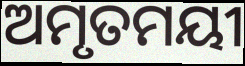
ଅମୃତମୟୀ